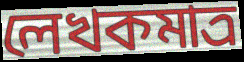
লেখকমাত্র